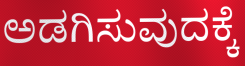
ಅಡಗಿಸುವುದಕ್ಕೆ